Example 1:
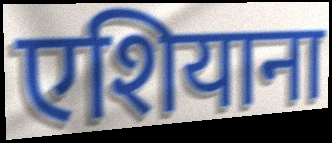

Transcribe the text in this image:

एशियाना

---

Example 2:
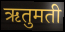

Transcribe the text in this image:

ऋतुमती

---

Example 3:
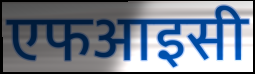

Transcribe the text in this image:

एफआइसी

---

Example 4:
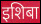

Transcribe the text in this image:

इशिबा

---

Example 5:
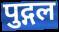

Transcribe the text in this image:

पुद्गल